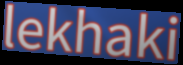
lekhaki